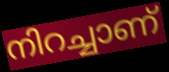
നിറച്ചാണ്